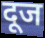
दूज